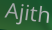
Ajith